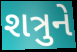
શત્રુને